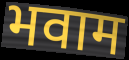
भवाम